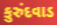
કુરુંદવાડ